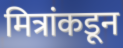
मित्रांकडून